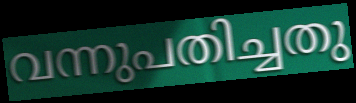
വന്നുപതിച്ചതു